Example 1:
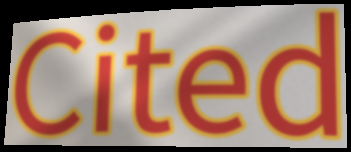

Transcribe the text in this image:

Cited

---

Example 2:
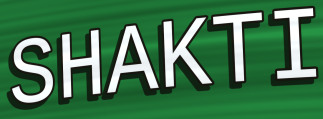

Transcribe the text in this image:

SHAKTI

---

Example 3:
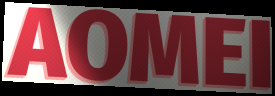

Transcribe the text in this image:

AOMEI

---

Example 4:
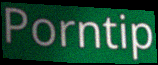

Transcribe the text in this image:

Porntip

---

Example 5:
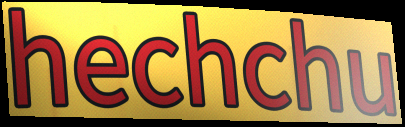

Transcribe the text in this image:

hechchu